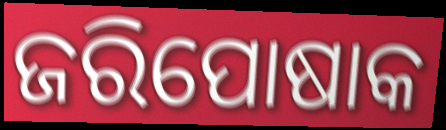
ଜରିପୋଷାକ